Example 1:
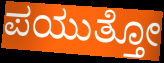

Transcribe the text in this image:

ಪಯುತ್ತೋ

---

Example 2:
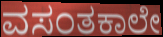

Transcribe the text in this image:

ವಸಂತಕಾಲೇ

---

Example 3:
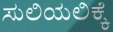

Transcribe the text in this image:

ಸುಲಿಯಲಿಕ್ಕೆ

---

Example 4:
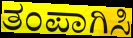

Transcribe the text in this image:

ತಂಪಾಗಿಸಿ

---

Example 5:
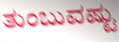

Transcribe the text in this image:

ತುಂಬುವಷ್ಟು